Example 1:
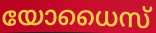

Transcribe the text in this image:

യോധൈസ്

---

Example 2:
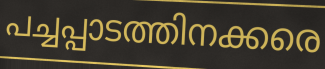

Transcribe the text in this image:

പച്ചപ്പാടത്തിനക്കരെ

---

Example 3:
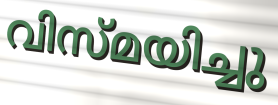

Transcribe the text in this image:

വിസ്മയിച്ചു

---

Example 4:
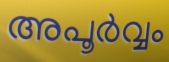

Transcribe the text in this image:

അപൂർവ്വം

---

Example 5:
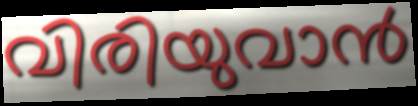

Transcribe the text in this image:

വിരിയുവാൻ